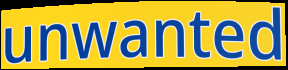
unwanted